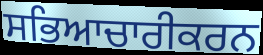
ਸਭਿਆਚਾਰੀਕਰਨ